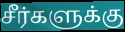
சீர்களுக்கு